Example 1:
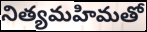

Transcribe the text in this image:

నిత్యమహిమతో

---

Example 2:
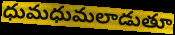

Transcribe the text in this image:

ధుమధుమలాడుతూ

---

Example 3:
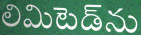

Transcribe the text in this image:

లిమిటెడ్‌ను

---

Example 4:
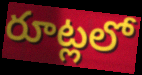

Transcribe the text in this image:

రూట్లలో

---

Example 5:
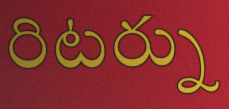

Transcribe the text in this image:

రిటర్ను